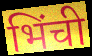
भिंची